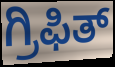
ಗ್ರಿಫಿತ್